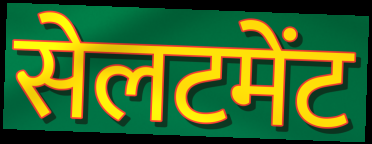
सेलटमेंट